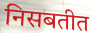
निसबतीत